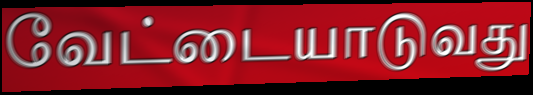
வேட்டையாடுவது